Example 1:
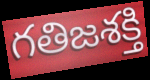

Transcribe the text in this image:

గతిజశక్తి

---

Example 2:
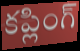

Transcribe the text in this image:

కప్లింగ్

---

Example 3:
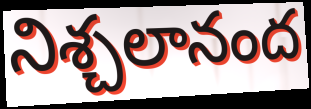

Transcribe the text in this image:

నిశ్చలానంద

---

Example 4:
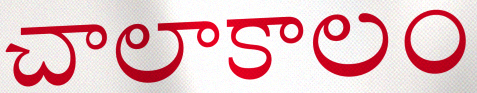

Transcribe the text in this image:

చాలాకాలం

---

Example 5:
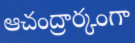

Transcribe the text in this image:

ఆచంద్రార్కంగా